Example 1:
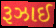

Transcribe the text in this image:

રૂઝાઈ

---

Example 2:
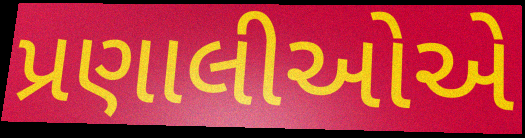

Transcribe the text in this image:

પ્રણાલીઓએ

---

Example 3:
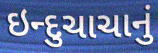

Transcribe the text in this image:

ઇન્દુચાચાનું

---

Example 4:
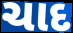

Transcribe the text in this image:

ચાદ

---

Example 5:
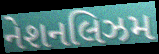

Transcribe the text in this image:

નેશનલિઝમ